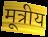
मूत्रीय